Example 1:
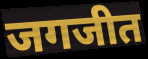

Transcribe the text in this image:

जगजीत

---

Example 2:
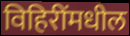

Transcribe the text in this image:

विहिरींमधील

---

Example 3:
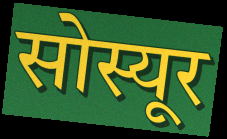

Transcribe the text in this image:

सोस्यूर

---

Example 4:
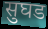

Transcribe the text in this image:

सुघड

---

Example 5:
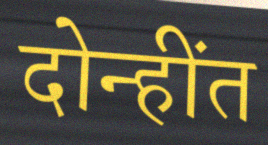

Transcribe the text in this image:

दोन्हींत